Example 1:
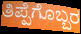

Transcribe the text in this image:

ತಿಪ್ಪೆಗೊಬ್ಬರ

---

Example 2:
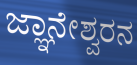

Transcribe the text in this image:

ಜ್ಞಾನೇಶ್ವರನ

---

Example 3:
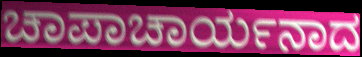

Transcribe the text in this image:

ಚಾಪಾಚಾರ್ಯನಾದ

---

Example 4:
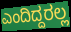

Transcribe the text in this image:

ಎಂದಿದ್ದರಲ್ಲ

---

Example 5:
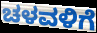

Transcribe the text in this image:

ಚಳವಳಿಗೆ